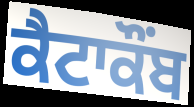
ਕੈਟਾਕੌਂਬ